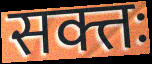
सक्तः